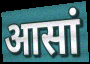
आसां